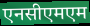
एनसीएमएम